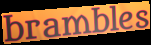
brambles